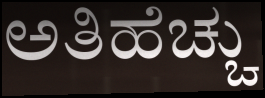
ಅತಿಹೆಚ್ಚು